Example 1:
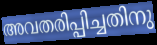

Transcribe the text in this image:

അവതരിപ്പിച്ചതിനു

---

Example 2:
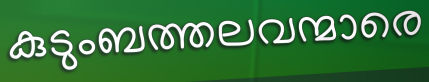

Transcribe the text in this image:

കുടുംബത്തലവന്മാരെ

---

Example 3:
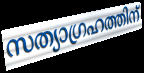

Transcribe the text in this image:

സത്യാഗ്രഹത്തിന്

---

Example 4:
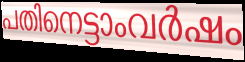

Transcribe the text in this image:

പതിനെട്ടാംവർഷം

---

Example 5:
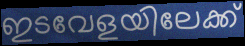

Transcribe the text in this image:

ഇടവേളയിലേക്ക്